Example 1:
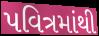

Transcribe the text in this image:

પવિત્રમાંથી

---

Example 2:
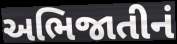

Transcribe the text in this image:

અભિજાતીનં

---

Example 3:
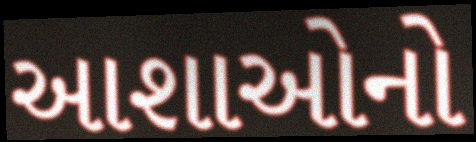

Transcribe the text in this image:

આશાઓનો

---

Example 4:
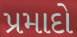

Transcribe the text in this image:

પ્રમાદો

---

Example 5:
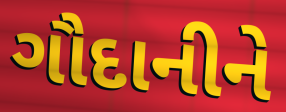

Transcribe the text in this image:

ગૌદાનીને